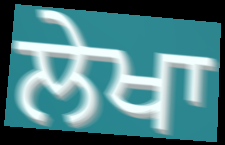
ਲੇਖਾ